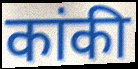
कांकी